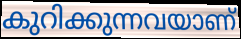
കുറിക്കുന്നവയാണ്